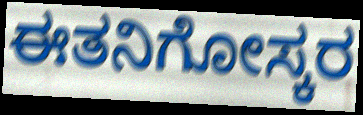
ಈತನಿಗೋಸ್ಕರ